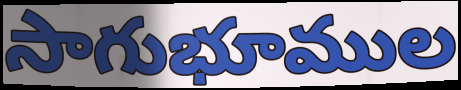
సాగుభూముల